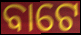
ବାଟେ